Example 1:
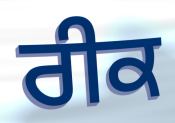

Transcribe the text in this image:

ਰੀਕ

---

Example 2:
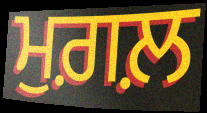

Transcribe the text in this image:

ਮੁਗ਼ਲ਼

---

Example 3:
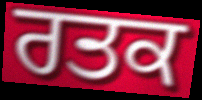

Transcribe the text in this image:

ਰਤਕ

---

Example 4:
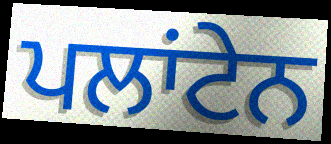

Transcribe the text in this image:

ਪਲਾਂਟੇਨ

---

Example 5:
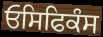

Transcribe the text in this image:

ਓਸਿਫਿਕੰਸ